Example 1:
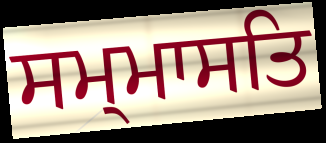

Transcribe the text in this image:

ਸਮ੍ਮਾਸਤਿ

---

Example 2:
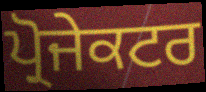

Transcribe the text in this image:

ਪ੍ਰੋਜੇਕਟਰ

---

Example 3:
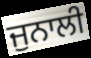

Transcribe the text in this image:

ਜੁਨਾਲੀ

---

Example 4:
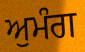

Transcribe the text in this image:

ਅੁਮੰਗ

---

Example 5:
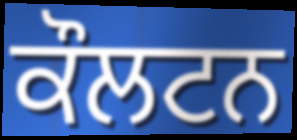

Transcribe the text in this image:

ਕੌਲਟਨ